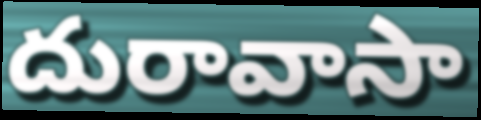
దురావాసా